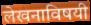
लेखनाविषयी